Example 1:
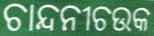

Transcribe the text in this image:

ଚାନ୍ଦନୀଚଉକ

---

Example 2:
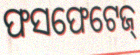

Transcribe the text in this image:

ଫସଫେଟେଜ୍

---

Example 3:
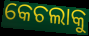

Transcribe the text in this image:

କେଚଲାକୁ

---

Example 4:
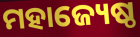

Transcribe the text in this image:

ମହାଜ୍ୟେଷ୍ଠ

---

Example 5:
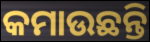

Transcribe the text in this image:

କମାଉଛନ୍ତି